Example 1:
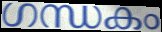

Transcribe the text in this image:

ഗന്ധകം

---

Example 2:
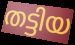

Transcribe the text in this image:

തട്ടിയ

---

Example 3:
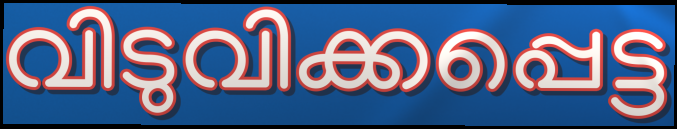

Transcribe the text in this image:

വിടുവിക്കപ്പെട്ട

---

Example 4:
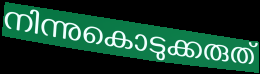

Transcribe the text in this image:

നിന്നുകൊടുക്കരുത്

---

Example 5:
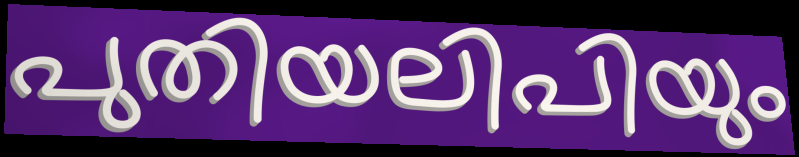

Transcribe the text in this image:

പുതിയലിപിയും